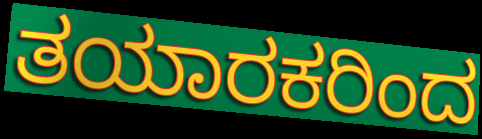
ತಯಾರಕರಿಂದ